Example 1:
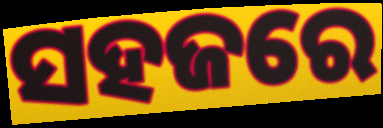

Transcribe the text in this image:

ସହଜରେ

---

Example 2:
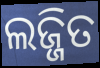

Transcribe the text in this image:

ଲଜ୍ଜିତ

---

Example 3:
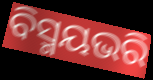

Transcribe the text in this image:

ବିସ୍ମୟଭରି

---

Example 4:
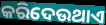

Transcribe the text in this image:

କରିଦେଉଥାଏ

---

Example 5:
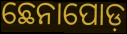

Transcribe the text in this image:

ଛେନାପୋଡ଼